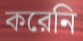
করেনি